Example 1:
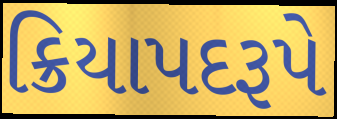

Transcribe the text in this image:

ક્રિયાપદરૂપે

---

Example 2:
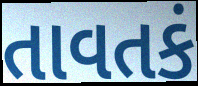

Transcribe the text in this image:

તાવતકં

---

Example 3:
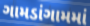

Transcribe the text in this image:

ગામડાંગામમાં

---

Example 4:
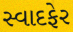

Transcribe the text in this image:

સ્વાદફેર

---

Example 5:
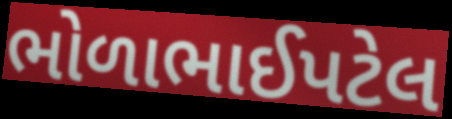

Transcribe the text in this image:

ભોળાભાઈપટેલ